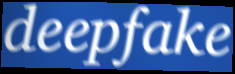
deepfake